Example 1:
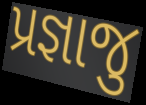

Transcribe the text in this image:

પ્રજ્ઞાજુ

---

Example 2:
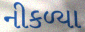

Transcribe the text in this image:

નીકળ્યા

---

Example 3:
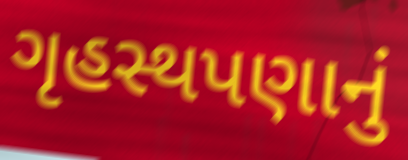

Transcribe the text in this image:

ગૃહસ્થપણાનું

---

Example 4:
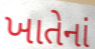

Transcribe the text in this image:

ખાતેનાં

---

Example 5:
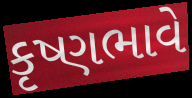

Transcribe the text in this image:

કૃષ્ણભાવે